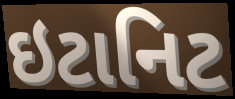
ઇટાનિટ